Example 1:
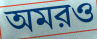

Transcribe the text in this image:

অমরও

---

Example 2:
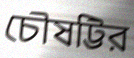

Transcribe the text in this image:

চৌষট্টির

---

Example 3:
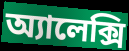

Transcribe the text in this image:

অ্যালেক্সি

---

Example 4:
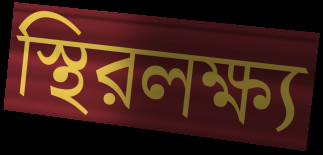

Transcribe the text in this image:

স্থিরলক্ষ্য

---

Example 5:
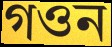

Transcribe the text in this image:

গওন